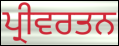
ਪ੍ਰੀਵਰਤਨ